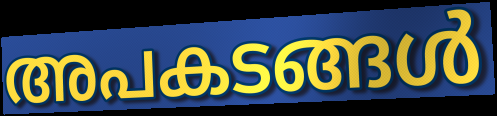
അപകടങ്ങൾ